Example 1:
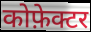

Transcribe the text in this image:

कोफ़ेक्टर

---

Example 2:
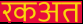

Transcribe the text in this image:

रकअत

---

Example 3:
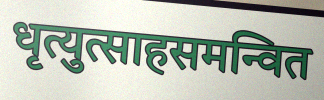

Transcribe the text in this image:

धृत्युत्साहसमन्वित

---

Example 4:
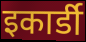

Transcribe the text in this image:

इकार्डी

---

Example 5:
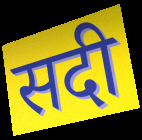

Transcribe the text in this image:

सदी